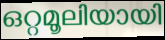
ഒറ്റമൂലിയായി